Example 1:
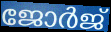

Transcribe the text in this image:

ജോർജ്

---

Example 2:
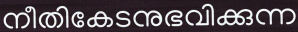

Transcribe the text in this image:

നീതികേടനുഭവിക്കുന്ന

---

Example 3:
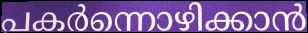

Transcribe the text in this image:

പകർന്നൊഴിക്കാൻ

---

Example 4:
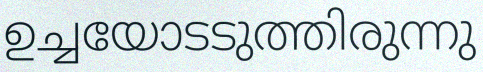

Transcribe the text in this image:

ഉച്ചയോടടുത്തിരുന്നു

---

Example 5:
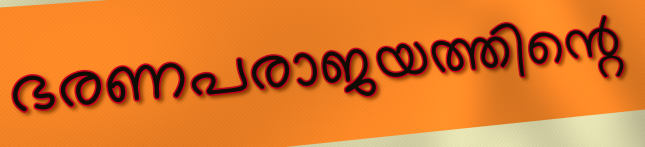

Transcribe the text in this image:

ഭരണപരാജയത്തിന്റെ